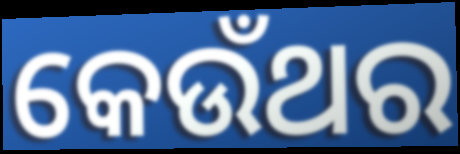
କେଉଁଥର